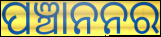
ପଞ୍ଚାନନର